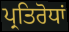
ਪ੍ਰਤਿਰੋਧਾਂ